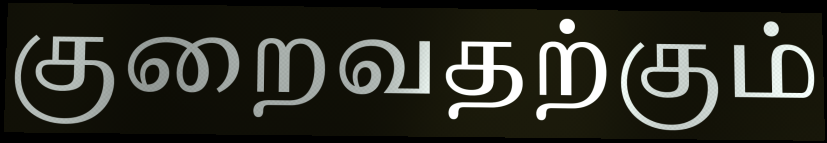
குறைவதற்கும்